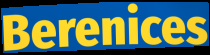
Berenices